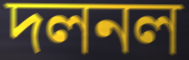
দলনল